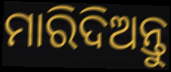
ମାରିଦିଅନ୍ତୁ